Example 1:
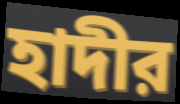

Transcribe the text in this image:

হাদীর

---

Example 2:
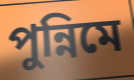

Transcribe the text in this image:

পুন্নিমে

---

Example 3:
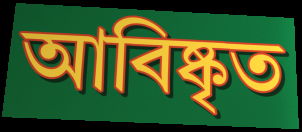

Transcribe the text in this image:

আবিষ্কৃত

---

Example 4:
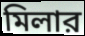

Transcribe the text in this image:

মিলার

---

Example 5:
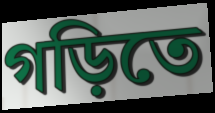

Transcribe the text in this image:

গড়িতে